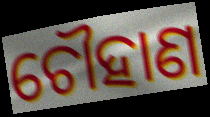
ଚୌହାଣ